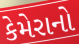
કેમેરાનો